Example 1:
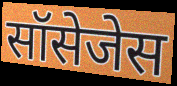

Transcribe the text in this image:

सॉसेजेस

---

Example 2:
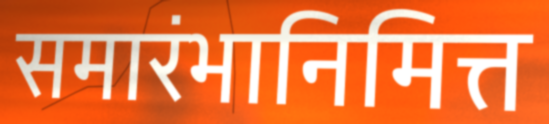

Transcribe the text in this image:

समारंभानिमित्त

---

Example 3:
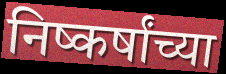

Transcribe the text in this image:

निष्कर्षांच्या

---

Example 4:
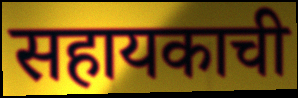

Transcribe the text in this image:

सहायकाची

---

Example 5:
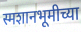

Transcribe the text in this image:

स्मशानभूमीच्या